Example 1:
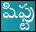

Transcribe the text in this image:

షిఫ్టు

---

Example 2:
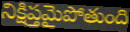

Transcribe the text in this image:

నిక్షిప్తమైపోతుంది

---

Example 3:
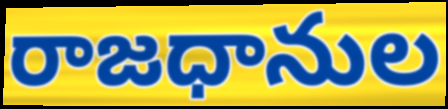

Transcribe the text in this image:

రాజధానుల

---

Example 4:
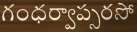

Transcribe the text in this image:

గంధర్వాప్సరసో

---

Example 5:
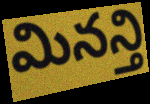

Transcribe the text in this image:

మినన్తి